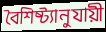
বৈশিষ্ট্যানুযায়ী